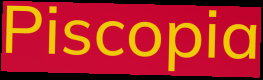
Piscopia